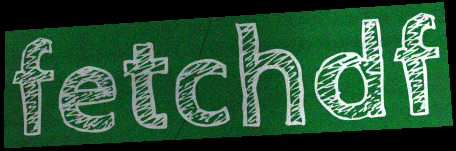
fetchdf